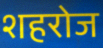
शहरोज